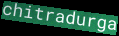
chitradurga